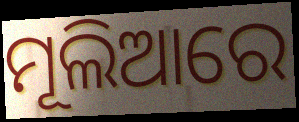
ମୂଲିଆରେ